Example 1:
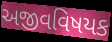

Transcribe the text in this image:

અજીવવિષયક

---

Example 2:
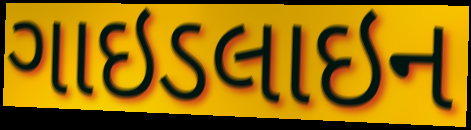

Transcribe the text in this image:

ગાઇડલાઇન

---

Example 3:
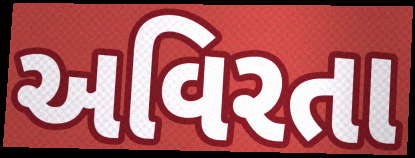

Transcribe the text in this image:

અવિરતા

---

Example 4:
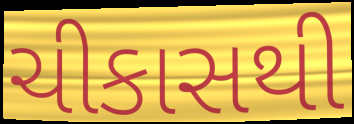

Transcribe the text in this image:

ચીકાસથી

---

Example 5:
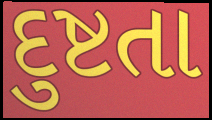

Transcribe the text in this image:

દુષ્ટતા